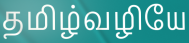
தமிழ்வழியே